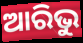
ଆରିଭୁ